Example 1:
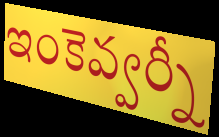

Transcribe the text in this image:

ఇంకెవ్వర్నీ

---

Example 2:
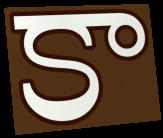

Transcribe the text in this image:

కా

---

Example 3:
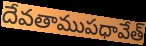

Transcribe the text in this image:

దేవతాముపధావేత్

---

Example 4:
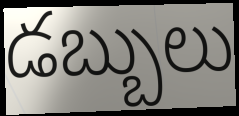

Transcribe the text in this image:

డబ్బులు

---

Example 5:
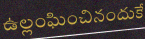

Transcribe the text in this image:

ఉల్లంఘించినందుకే